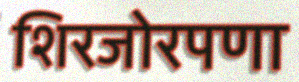
शिरजोरपणा